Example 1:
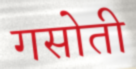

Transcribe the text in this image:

गसोती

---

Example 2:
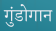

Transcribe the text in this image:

गुंडोगान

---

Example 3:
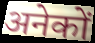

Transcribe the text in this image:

अनेकों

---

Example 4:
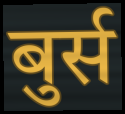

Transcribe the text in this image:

बुर्स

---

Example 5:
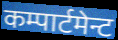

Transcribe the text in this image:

कम्पार्टमेन्ट